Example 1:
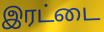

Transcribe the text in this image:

இரட்டை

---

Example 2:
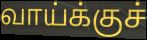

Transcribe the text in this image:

வாய்க்குச்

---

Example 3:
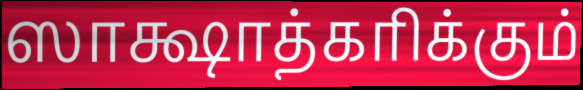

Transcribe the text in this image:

ஸாக்ஷாத்கரிக்கும்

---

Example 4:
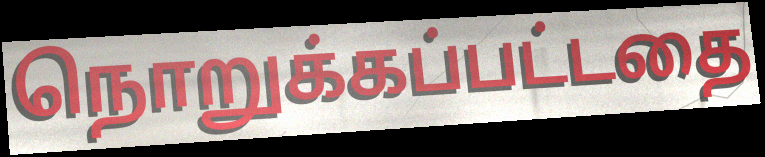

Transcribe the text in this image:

நொறுக்கப்பட்டதை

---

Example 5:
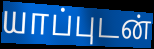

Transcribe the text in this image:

யாப்புடன்